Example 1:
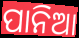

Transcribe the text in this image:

ପାନିଆ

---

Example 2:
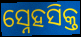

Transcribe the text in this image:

ସ୍ନେହସିକ୍ତ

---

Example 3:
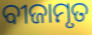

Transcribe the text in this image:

ବୀଜାମୃତ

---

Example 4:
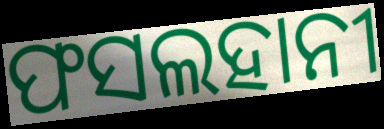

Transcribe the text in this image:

ଫସଲହାନୀ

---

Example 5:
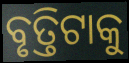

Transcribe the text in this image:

ବୃତ୍ତିଟାକୁ